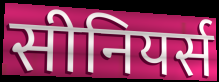
सीनियर्स